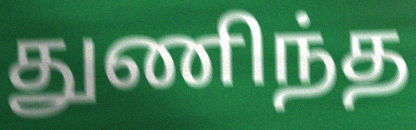
துணிந்த